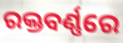
ରକ୍ତବର୍ଣ୍ଣରେ